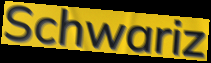
Schwariz